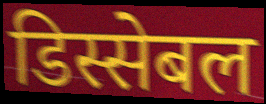
डिस्सेबल